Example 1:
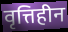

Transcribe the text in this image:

वृत्तिहीन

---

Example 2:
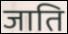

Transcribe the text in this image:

जाति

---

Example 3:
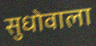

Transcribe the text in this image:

सुधोवाला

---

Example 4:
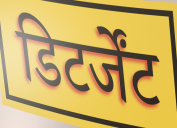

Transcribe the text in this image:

डिटर्जेंट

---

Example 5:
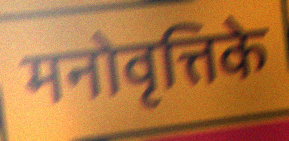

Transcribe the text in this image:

मनोवृत्तिके